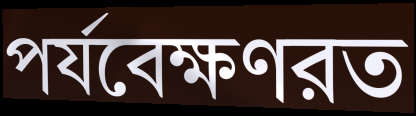
পর্যবেক্ষণরত